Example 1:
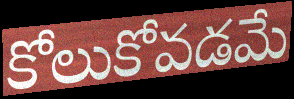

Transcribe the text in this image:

కోలుకోవడమే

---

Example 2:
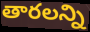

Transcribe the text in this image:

తారలన్ని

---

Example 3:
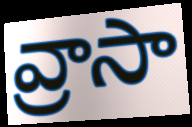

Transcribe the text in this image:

వ్రాసా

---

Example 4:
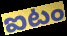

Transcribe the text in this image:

ఐటం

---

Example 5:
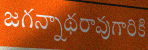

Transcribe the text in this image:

జగన్నాథరావుగారికి